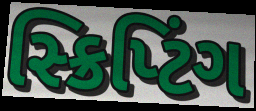
સ્ક્રિપ્ટિંગ